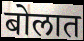
बोलात